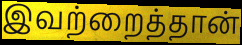
இவற்றைத்தான்